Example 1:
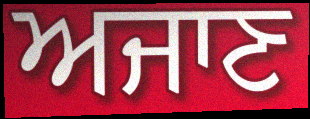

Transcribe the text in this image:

ਅਜਾਣ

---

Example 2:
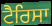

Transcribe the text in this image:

ਟੈਰਿਸਾ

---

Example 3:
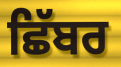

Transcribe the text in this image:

ਛਿੱਬਰ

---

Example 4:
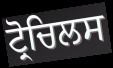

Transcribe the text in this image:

ਟ੍ਰੋਚਿਲਸ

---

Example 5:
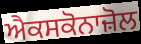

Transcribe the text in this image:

ਐਕਸਕੋਨਾਜ਼ੋਲ